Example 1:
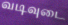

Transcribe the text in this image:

வடிவுடை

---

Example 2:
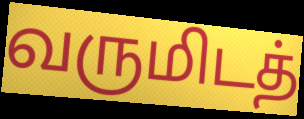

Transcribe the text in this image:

வருமிடத்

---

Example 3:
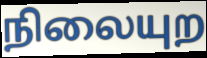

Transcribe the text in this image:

நிலையுற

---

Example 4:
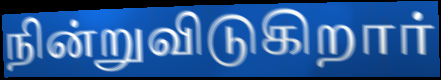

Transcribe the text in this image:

நின்றுவிடுகிறார்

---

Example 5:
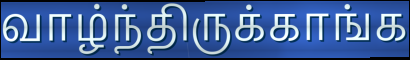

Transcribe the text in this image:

வாழ்ந்திருக்காங்க